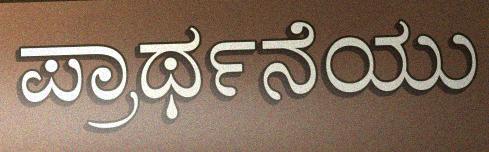
ಪ್ರಾರ್ಥನೆಯು